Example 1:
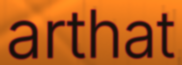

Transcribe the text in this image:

arthat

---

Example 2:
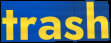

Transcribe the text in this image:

trash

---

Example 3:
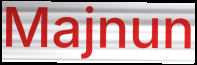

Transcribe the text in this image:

Majnun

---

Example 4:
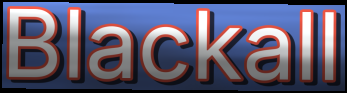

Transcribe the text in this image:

Blackall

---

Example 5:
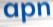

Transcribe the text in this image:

apn